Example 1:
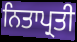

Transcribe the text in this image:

ਨਿਤਾਪ੍ਰਤੀ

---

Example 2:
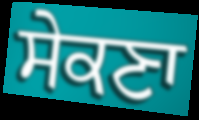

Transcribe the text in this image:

ਸੇਕਣਾ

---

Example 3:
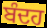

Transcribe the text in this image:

ਬੰਦਹ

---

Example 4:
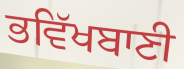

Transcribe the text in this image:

ਭਵਿੱਖਬਾਣੀ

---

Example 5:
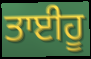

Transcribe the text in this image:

ਤਾਈਹੂ